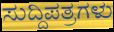
ಸುದ್ದಿಪತ್ರಗಳು